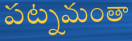
పట్నమంతా